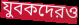
যুবকদেরও